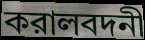
করালবদনী